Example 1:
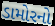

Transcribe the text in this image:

ડામોરનો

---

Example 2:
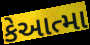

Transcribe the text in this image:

કેઆત્મા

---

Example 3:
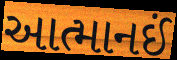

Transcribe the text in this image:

આત્માનઈં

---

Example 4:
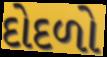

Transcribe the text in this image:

દોદળો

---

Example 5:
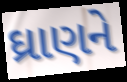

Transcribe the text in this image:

ઘ્રાણને